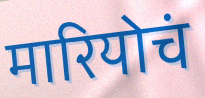
मारियोचं